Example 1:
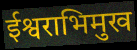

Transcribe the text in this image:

ईश्वराभिमुख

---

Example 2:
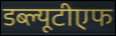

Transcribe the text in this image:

डब्ल्यूटीएफ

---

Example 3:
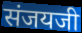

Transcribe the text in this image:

संजयजी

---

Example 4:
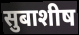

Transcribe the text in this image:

सुबाशीष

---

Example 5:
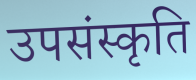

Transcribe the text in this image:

उपसंस्कृति